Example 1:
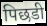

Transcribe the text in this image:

पिछडी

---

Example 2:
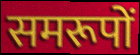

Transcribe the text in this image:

समरूपों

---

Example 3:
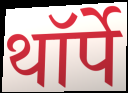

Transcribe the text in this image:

थॉर्पे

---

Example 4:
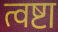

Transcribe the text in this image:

त्वष्टा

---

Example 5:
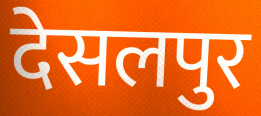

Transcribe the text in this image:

देसलपुर